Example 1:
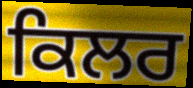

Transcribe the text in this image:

ਕਿਲਰ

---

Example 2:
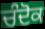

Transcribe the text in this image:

ਚੰਦੋਕ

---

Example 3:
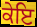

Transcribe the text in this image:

ਕੇਇ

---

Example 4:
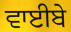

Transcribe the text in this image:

ਵਾਈਬੇ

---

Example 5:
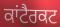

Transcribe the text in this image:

ਕਾਂਟੈਰਕਟ